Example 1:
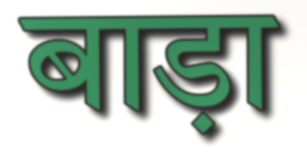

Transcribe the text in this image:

बाड़ा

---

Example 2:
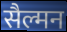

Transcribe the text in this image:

सैल्मन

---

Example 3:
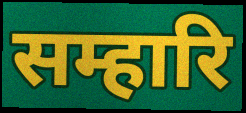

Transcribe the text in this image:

सम्हारि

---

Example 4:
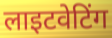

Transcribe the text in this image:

लाइटवेटिंग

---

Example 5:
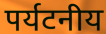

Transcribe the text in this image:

पर्यटनीय